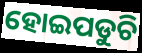
ହୋଇପଡୁଚି